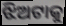
ଝିଅଟାକୁ